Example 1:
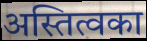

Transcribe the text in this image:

अस्तित्वका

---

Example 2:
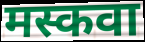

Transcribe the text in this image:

मस्कवा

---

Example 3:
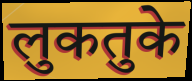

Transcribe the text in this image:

लुकतुके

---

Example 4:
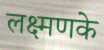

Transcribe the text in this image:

लक्ष्मणके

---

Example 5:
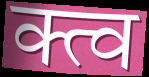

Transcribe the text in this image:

क्त्व